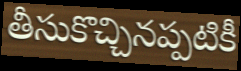
తీసుకొచ్చినప్పటికీ